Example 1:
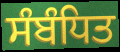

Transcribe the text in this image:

ਸੰਬੰਧਿਤ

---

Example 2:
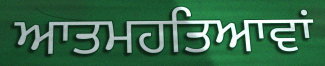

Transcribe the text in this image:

ਆਤਮਹਤਿਆਵਾਂ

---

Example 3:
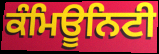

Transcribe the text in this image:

ਕੰਮਿਊਨਿਟੀ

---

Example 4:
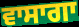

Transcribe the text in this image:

ਵਾਸਾਗਾ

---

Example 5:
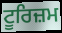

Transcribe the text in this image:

ਟੂਰਿਜ਼ਮ